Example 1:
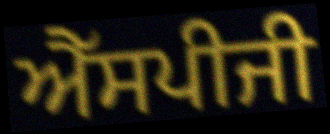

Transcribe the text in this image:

ਐੱਸਪੀਜੀ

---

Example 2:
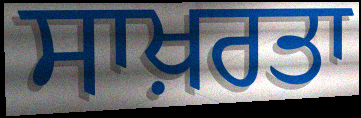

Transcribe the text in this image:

ਸਾਖ਼ਰਤਾ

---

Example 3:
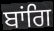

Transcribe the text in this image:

ਬਾਂਗਿ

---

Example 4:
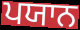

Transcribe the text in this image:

ਪਯਾਨ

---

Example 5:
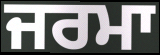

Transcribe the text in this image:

ਜਰਮਾ